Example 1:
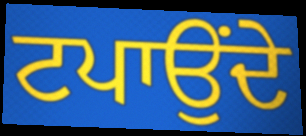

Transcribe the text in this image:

ਟਪਾਉਂਦੇ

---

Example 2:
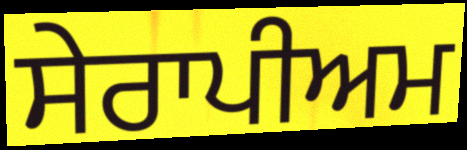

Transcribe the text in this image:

ਸੇਰਾਪੀਅਮ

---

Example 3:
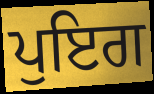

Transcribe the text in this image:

ਪੁਇਗ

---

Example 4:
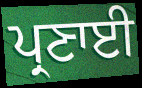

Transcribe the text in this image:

ਪ੍ਰਣਾਈ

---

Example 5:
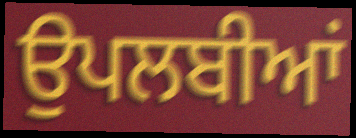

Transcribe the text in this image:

ਉਪਲਬੀਆਂ